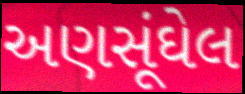
અણસૂંઘેલ